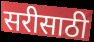
सरीसाठी